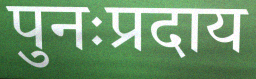
पुनःप्रदाय